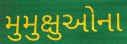
મુમુક્ષુઓના